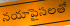
నయాపైసలతో